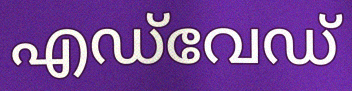
എഡ്‌വേഡ്